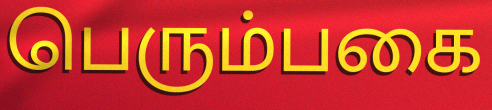
பெரும்பகை